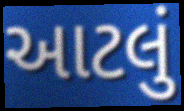
આટલું